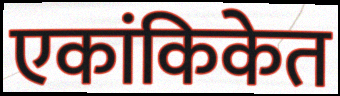
एकांकिकेत